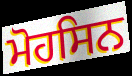
ਮੋਹਸਿਨ